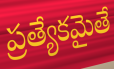
ప్రత్యేకమైతే